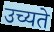
उच्यते